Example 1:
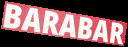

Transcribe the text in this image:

BARABAR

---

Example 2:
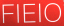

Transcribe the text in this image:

FIEIO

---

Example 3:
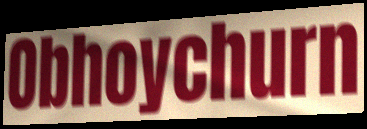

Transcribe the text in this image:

Obhoychurn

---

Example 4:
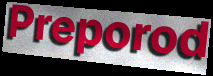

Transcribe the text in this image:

Preporod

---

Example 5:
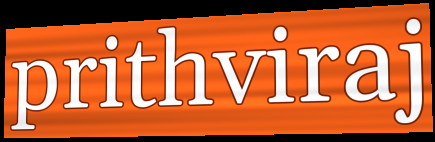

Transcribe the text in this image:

prithviraj